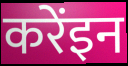
करेंइन